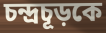
চন্দ্রচূড়কে